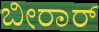
ಬೀರಾರ್